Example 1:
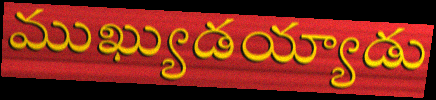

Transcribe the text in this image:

ముఖ్యుడయ్యాడు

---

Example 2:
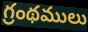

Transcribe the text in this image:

గ్రంథములు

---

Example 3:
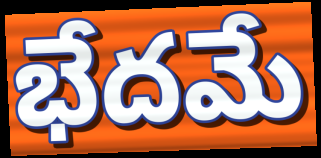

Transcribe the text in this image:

భేదమే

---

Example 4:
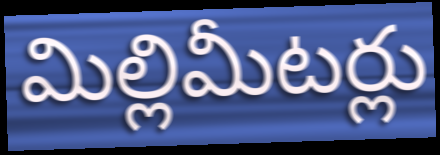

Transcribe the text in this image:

మిల్లిమీటర్లు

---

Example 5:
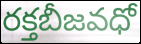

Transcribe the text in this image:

రక్తబీజవధో